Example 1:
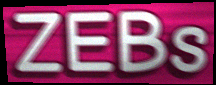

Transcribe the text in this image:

ZEBs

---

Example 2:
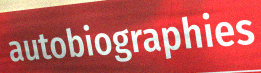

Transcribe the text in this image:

autobiographies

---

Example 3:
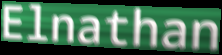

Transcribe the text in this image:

Elnathan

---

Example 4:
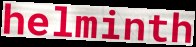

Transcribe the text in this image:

helminth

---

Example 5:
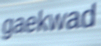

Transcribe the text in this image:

gaekwad